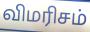
விமரிசம்